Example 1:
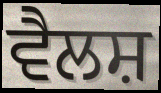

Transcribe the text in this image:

ਵੈਲਸ਼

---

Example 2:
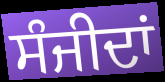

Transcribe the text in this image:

ਸੰਜੀਦਾਂ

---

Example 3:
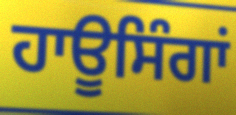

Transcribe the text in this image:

ਹਾਊਸਿੰਗਾਂ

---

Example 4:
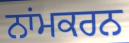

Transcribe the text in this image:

ਨਾਂਮਕਰਨ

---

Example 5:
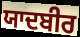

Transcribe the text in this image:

ਯਾਦਬੀਰ